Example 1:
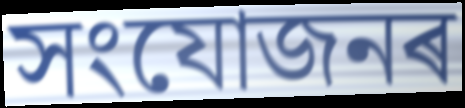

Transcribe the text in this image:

সংযোজনৰ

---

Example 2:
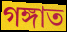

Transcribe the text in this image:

গঙ্গাত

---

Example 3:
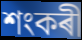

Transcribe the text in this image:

শংকৰী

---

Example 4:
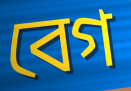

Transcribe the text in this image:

বেগ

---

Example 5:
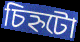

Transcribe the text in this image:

চিহ্নটো